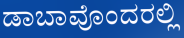
ಡಾಬಾವೊಂದರಲ್ಲಿ